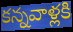
కన్నవాళ్లకి